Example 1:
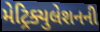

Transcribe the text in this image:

મેટ્રિક્યુલેશનની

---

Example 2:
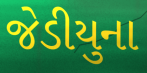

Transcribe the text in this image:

જેડીયુના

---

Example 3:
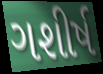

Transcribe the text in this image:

ગશીર્ષ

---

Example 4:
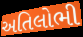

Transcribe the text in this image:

અતિલોભી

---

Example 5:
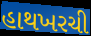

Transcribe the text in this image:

હાથખરચી